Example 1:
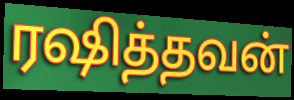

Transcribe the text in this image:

ரஷித்தவன்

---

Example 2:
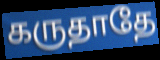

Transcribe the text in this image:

கருதாதே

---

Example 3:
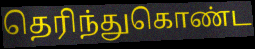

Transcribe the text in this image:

தெரிந்துகொண்ட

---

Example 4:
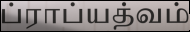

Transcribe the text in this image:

ப்ராப்யத்வம்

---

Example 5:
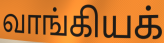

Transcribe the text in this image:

வாங்கியக்